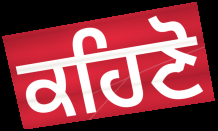
ਕਹਿਣੋ